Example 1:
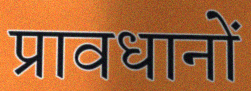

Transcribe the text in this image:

प्रावधानों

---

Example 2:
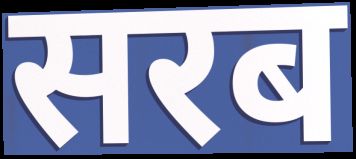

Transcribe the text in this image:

सरब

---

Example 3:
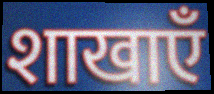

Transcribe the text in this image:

शाखाएँ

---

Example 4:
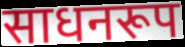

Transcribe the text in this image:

साधनरूप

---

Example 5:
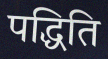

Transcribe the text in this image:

पद्धिति